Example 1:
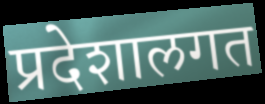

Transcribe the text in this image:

प्रदेशालगत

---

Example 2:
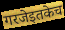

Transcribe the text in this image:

गरजेइतकेच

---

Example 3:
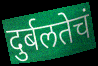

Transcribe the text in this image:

दुर्बलतेचं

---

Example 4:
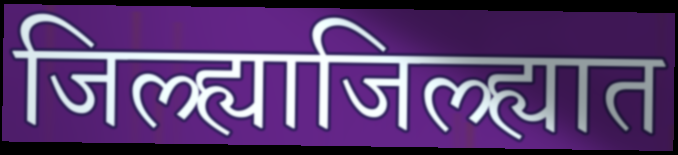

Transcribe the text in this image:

जिल्ह्याजिल्ह्यात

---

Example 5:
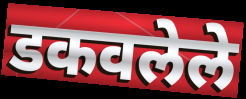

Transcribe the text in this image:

डकवलेले